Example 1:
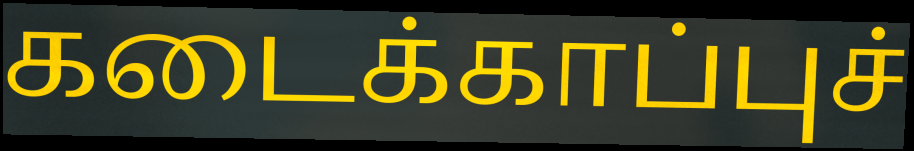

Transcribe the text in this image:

கடைக்காப்புச்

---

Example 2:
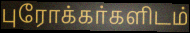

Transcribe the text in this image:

புரோக்கர்களிடம்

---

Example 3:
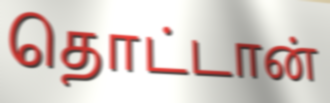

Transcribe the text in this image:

தொட்டான்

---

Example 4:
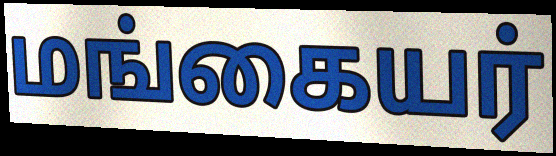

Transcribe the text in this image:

மங்கையர்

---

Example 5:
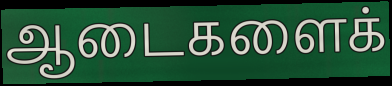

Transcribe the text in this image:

ஆடைகளைக்